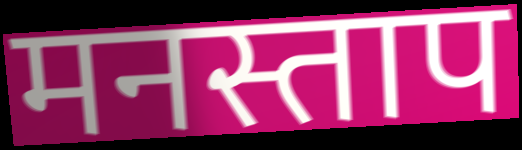
मनस्ताप